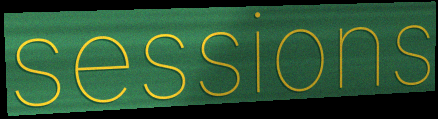
sessions